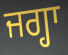
ਜਗ੍ਹਾ